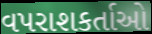
વપરાશકર્તાઓ